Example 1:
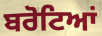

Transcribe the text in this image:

ਬਰੋਟਿਆਂ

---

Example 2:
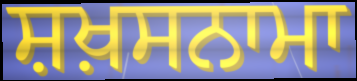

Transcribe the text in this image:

ਸ਼ਖ਼ਸਨਾਮਾ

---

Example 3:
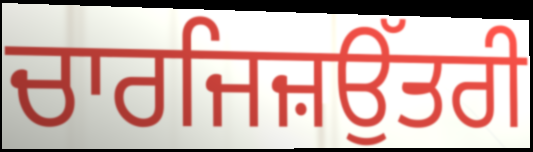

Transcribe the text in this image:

ਚਾਰਜਿਜ਼ਉੱਤਰੀ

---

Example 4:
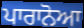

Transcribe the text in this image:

ਪਾਰਾਨੋਆ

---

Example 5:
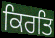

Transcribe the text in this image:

ਕਿਰਤਿ